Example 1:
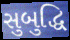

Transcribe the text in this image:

સુબુદ્ધિ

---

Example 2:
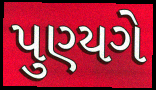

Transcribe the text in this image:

પુણ્યગે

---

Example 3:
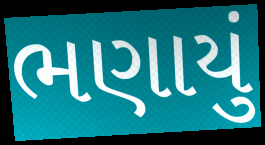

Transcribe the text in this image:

ભણાયું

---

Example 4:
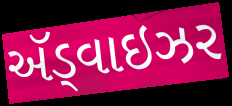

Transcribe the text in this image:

ઍડ્વાઇઝર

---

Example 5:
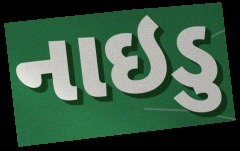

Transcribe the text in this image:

નાઇડુ